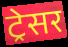
ट्रेसर